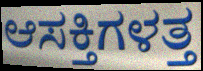
ಆಸಕ್ತಿಗಳತ್ತ